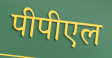
पीपीएल